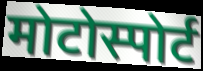
मोटोस्पोर्ट